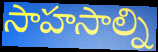
సాహసాల్ని